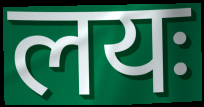
लयः